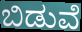
ಬಿಡುವೆ